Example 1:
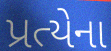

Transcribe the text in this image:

પ્રત્યેના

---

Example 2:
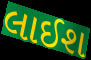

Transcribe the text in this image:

લાઈશ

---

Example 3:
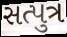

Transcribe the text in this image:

સત્પુત્ર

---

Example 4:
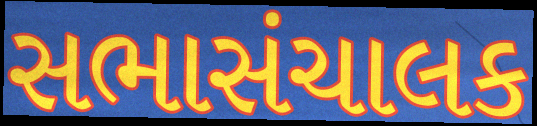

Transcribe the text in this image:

સભાસંચાલક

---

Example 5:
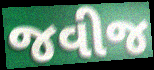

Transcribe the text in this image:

જવીજ